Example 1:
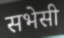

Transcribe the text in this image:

सभेसी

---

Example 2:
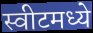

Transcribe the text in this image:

स्वीटमध्ये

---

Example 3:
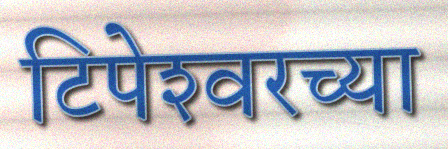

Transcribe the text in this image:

टिपेश्वरच्या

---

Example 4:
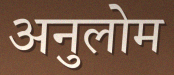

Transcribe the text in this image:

अनुलोम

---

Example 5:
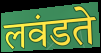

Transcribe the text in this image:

लवंडते